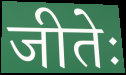
जीतेः